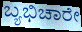
ಬ್ಯಭಿಚಾರೇ